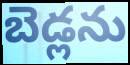
బెడ్లను